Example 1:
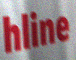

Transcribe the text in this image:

hline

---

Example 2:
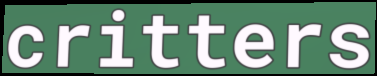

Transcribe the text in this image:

critters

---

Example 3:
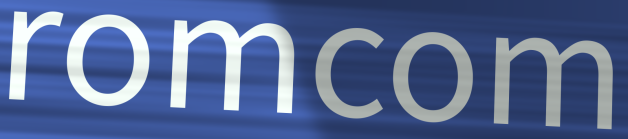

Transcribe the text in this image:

romcom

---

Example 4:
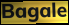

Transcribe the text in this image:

Bagale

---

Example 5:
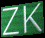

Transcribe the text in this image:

ZK